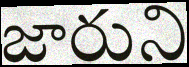
జారుని